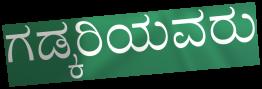
ಗಡ್ಕರಿಯವರು